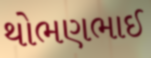
થોભણભાઈ